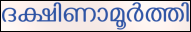
ദക്ഷിണാമൂർത്തി